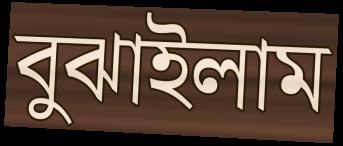
বুঝাইলাম